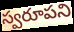
స్వరూపని